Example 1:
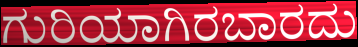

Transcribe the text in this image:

ಗುರಿಯಾಗಿರಬಾರದು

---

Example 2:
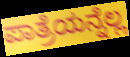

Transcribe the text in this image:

ಪಾತ್ರೆಯನ್ನೆಲ್ಲ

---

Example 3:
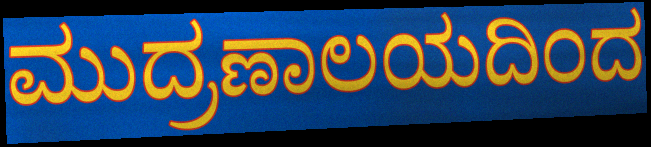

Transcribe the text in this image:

ಮುದ್ರಣಾಲಯದಿಂದ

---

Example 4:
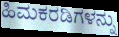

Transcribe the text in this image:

ಹಿಮಕರಡಿಗಳನ್ನು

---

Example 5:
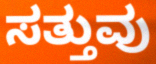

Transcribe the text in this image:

ಸತ್ತುವು